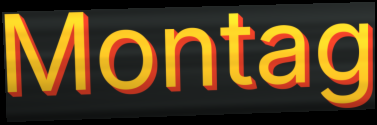
Montag